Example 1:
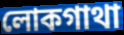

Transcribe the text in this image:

লোকগাথা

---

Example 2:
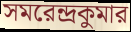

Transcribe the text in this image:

সমরেন্দ্রকুমার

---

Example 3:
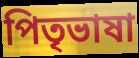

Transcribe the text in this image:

পিতৃভাষা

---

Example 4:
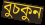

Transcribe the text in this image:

বুচকুন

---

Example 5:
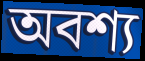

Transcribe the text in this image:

অবশ্য